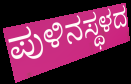
ಪುಳಿನಸ್ಥಳದ